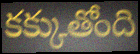
కక్కుతోంది